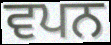
ਵਪਨ